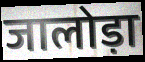
जालोड़ा